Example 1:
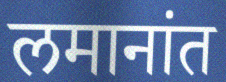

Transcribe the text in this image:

लमानांत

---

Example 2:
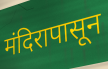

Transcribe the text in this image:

मंदिरापासून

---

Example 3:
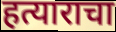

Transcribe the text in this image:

हत्याराचा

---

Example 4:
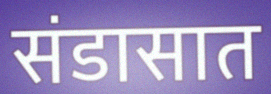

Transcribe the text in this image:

संडासात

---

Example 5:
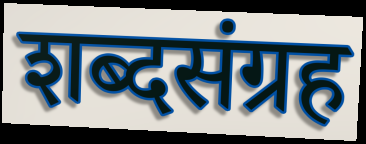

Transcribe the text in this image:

शब्दसंग्रह